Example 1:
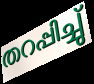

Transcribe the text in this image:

തറപ്പിച്ചു്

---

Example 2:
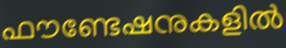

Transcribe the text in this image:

ഫൗണ്ടേഷനുകളിൽ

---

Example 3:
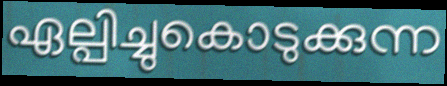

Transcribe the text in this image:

ഏല്പിച്ചുകൊടുക്കുന്ന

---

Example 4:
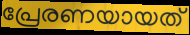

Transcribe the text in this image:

പ്രേരണയായത്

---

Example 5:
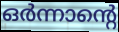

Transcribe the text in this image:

ഒർന്നാന്റെ